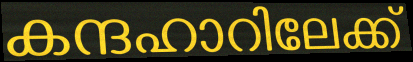
കന്ദഹാറിലേക്ക്